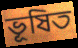
ভূষিত